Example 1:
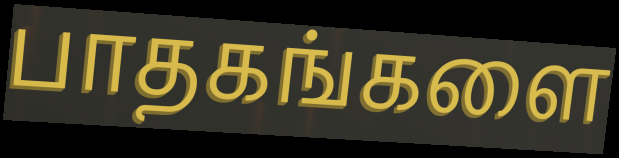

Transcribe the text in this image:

பாதகங்களை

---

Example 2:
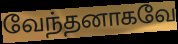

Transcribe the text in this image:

வேந்தனாகவே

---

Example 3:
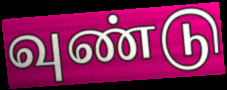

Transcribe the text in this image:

வுண்டு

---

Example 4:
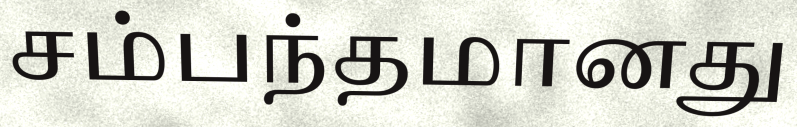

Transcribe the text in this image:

சம்பந்தமானது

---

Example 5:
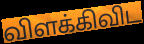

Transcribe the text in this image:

விளக்கிவிட